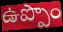
ఉప్పొం